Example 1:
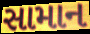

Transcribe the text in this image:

સામાન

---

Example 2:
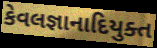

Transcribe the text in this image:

કેવલજ્ઞાનાદિયુક્ત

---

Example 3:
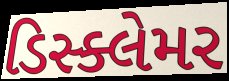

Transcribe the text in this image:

ડિસ્ક્લેમર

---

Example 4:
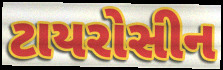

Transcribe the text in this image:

ટાયરોસીન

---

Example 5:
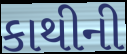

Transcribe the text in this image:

કાથીની